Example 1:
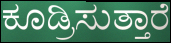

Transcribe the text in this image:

ಕೂಡ್ರಿಸುತ್ತಾರೆ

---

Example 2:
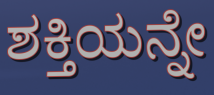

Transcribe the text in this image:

ಶಕ್ತಿಯನ್ನೇ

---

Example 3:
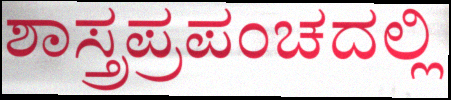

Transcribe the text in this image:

ಶಾಸ್ತ್ರಪ್ರಪಂಚದಲ್ಲಿ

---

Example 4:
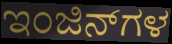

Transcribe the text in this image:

ಇಂಜಿನ್‌ಗಳ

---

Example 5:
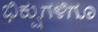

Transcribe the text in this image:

ಭಿಕ್ಷುಗಳಿಗೂ